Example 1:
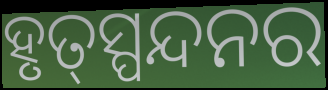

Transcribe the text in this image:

ହୃତ୍‌ସ୍ପନ୍ଦନର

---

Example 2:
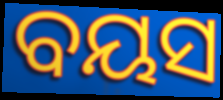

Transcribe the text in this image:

ବୟସ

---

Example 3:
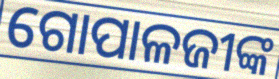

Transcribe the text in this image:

ଗୋପାଳଜୀଙ୍କ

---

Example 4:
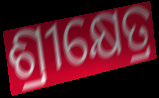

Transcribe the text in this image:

ଶ୍ରୀକ୍ଷେତ୍ର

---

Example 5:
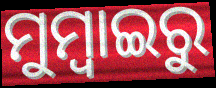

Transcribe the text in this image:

ମୁମ୍ବାଇରୁ